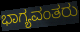
ಭಾಗ್ಯವಂತರು